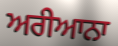
ਅਰੀਆਨਾ